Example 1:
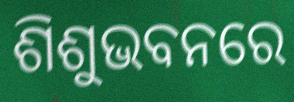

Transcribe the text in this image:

ଶିଶୁଭବନରେ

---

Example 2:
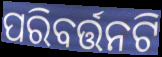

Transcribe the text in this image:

ପରିବର୍ତ୍ତନଟି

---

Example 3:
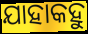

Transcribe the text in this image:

ଯାହାକହୁ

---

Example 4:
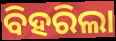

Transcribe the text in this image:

ବିହରିଲା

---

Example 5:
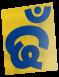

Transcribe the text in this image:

ଢଁ